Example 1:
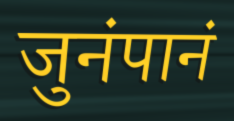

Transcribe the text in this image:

जुनंपानं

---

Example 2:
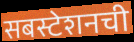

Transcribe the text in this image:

सबस्टेशनची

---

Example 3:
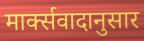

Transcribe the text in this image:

मार्क्सवादानुसार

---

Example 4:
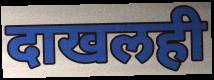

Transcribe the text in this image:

दाखलही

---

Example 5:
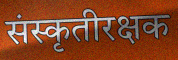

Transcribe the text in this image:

संस्कृतीरक्षक